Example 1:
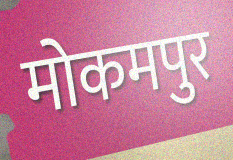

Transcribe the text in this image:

मोकमपुर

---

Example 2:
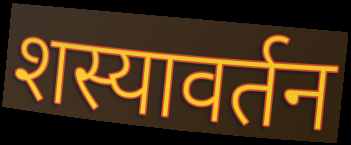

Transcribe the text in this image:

शस्यावर्तन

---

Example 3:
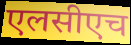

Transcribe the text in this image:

एलसीएच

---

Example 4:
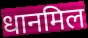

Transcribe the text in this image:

धानमिल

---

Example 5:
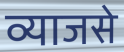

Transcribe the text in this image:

व्याजसे